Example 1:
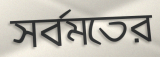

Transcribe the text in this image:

সর্বমতের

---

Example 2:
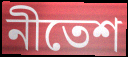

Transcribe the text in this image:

নীতেশ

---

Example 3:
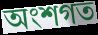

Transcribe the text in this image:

অংশগত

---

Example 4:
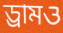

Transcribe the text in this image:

ড্রামও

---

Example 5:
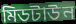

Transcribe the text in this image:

মিডটাউন